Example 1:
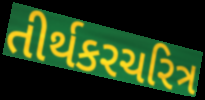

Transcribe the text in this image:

તીર્થકરચરિત્ર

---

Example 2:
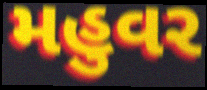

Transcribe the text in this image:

મહુવર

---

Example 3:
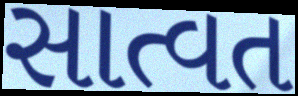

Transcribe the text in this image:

સાત્વત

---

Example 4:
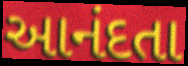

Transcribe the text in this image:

આનંદતા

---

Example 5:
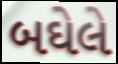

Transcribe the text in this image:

બઘેલે